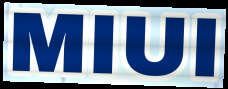
MIUI